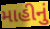
માહીનું